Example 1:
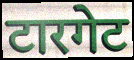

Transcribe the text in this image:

टारगेट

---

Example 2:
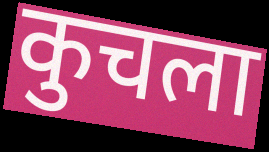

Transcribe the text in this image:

कुचला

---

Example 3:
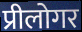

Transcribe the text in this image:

प्रीलोगर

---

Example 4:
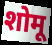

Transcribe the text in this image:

शोमू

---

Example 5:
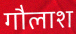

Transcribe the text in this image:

गौलाश